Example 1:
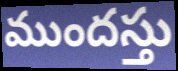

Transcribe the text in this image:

ముందస్తు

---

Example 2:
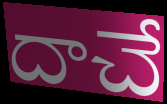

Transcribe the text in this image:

దాచే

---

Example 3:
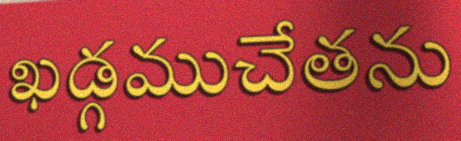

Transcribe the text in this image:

ఖడ్గముచేతను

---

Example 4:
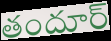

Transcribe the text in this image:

తందూర్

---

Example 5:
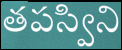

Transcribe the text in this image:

తపస్విని